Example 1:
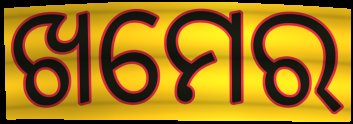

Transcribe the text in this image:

ଖମେର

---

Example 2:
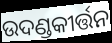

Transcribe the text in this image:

ଉଦଣ୍ଡକୀର୍ତ୍ତନ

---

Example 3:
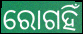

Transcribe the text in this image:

ରୋଗହିଁ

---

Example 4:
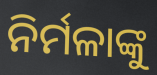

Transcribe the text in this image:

ନିର୍ମଳାଙ୍କୁ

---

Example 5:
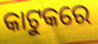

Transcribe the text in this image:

କାଟୁକରେ